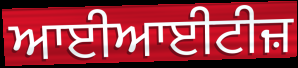
ਆਈਆਈਟੀਜ਼